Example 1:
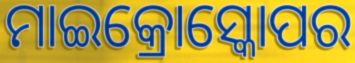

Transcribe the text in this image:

ମାଇକ୍ରୋସ୍କୋପର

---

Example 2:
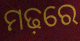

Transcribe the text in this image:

ମଢ଼ରେ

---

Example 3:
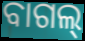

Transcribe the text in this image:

ବାଗଲ୍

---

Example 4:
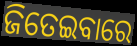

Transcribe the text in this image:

ଜିତେଇବାରେ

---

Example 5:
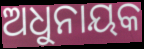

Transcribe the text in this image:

ଅଧୁନାୟକ